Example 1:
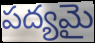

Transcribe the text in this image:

పద్యమై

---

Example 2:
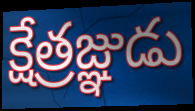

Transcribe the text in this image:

క్షేత్రజ్ఞుడు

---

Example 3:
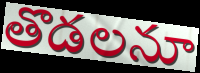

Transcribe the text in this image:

తొడలనూ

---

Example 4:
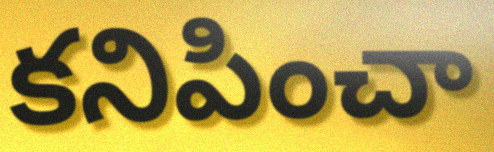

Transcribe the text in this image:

కనిపించా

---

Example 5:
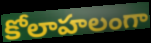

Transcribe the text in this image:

కోలాహలంగా